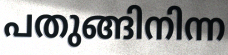
പതുങ്ങിനിന്ന